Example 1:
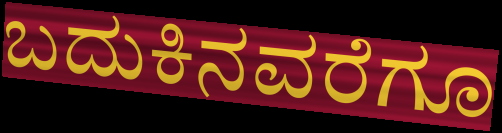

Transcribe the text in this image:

ಬದುಕಿನವರೆಗೂ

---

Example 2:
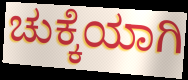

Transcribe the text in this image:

ಚುಕ್ಕೆಯಾಗಿ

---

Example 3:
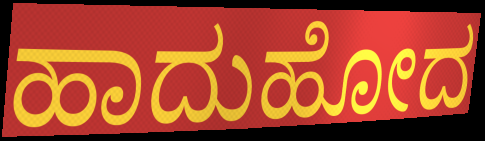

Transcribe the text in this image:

ಹಾದುಹೋದ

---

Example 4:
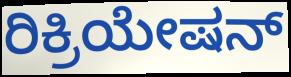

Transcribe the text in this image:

ರಿಕ್ರಿಯೇಷನ್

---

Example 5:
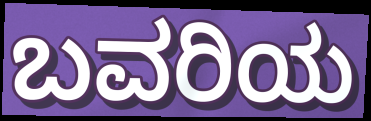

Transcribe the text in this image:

ಬವರಿಯ